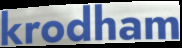
krodham